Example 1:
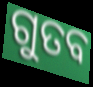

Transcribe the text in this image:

ଗୁତବ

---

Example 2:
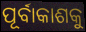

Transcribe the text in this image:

ପୂର୍ବାକାଶକୁ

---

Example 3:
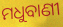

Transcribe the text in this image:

ମଧୁବାଣୀ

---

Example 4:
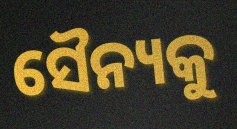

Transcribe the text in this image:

ସୈନ୍ୟକୁ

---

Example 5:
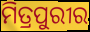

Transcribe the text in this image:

ମିତ୍ରପୁରୀର